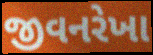
જીવનરેખા